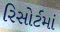
રિસોર્ટમાં